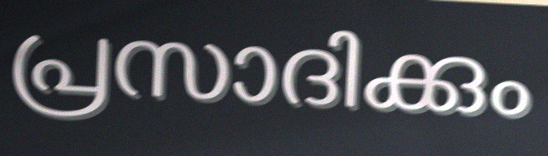
പ്രസാദിക്കും